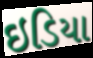
ઇડિયા